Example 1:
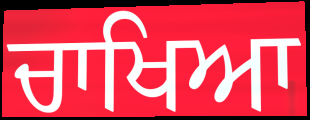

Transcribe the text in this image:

ਚਾਖਿਆ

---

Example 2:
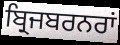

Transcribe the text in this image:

ਬ੍ਰਿਜਬਰਨਰਾਂ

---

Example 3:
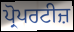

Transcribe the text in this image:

ਪ੍ਰੋਪਰਟੀਜ਼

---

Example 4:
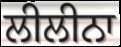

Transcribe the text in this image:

ਲੀਲੀਨਾ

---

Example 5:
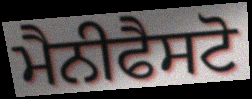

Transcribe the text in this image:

ਮੈਨੀਫੈਸਟੋ